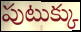
పుటుక్కు